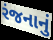
રંજનાનું